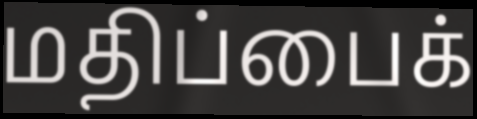
மதிப்பைக்